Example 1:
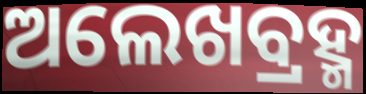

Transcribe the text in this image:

ଅଲେଖବ୍ରହ୍ମ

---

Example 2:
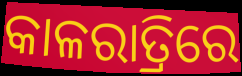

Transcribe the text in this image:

କାଳରାତ୍ରିରେ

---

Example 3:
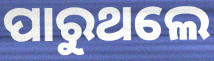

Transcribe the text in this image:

ପାରୁଥଲେ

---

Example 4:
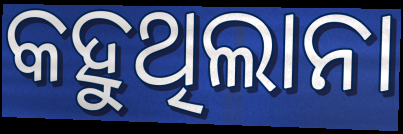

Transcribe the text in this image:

କହୁଥିଲାନା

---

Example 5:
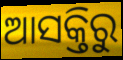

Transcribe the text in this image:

ଆସକ୍ତିରୁ